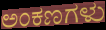
ಅಂಕಣಗಳು